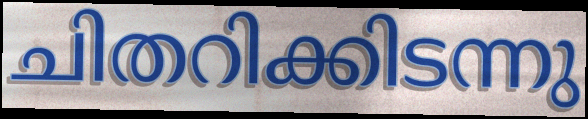
ചിതറിക്കിടന്നു